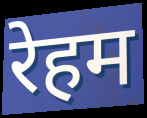
रेहम